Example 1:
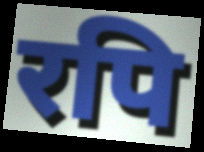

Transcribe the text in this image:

रपि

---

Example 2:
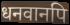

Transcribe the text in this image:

धनवानपि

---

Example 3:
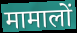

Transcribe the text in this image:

मामालों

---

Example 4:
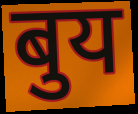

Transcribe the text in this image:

बुय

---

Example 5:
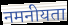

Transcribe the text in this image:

नमनीयता